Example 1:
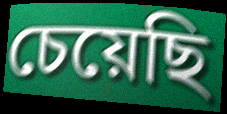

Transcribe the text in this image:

চেয়েছি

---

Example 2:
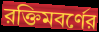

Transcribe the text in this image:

রক্তিমবর্ণের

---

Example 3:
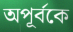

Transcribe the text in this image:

অপূর্বকে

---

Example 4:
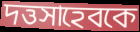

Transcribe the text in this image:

দত্তসাহেবকে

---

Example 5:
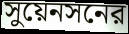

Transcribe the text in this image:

সুয়েনসনের